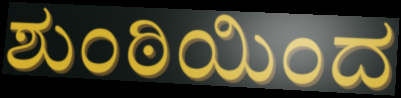
ಶುಂಠಿಯಿಂದ